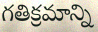
గతిక్రమాన్ని